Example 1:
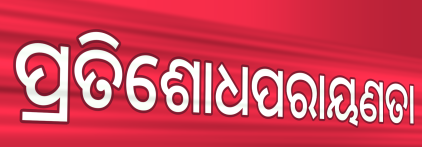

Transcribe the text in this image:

ପ୍ରତିଶୋଧପରାୟଣତା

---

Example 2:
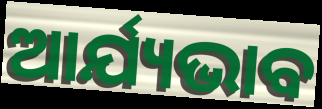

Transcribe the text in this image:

ଆର୍ଯ୍ୟଭାବ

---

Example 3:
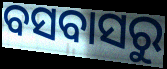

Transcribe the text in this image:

ବସବାସରୁ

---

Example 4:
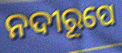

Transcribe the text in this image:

ନଦୀରୂପେ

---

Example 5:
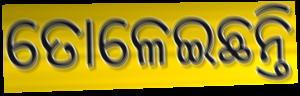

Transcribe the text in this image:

ତୋଳେଇଛନ୍ତି